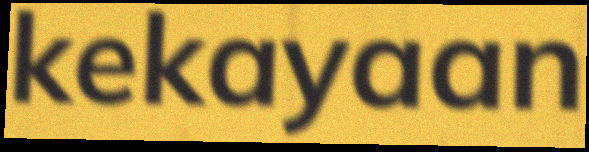
kekayaan